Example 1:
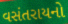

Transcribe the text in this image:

વસંતરાયનો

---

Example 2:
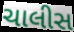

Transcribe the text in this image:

ચાલીસ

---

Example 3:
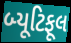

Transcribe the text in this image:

બ્યૂટિફૂલ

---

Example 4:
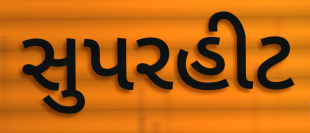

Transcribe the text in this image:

સુપરહીટ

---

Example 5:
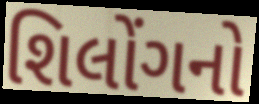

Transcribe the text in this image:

શિલોંગનો